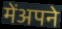
मेंअपने